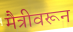
मैत्रीवरून